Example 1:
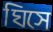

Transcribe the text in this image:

ঘিসে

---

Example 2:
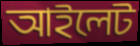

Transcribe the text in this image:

আইলেট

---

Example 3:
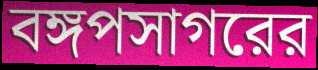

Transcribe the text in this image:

বঙ্গপসাগরের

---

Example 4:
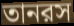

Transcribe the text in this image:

তানরস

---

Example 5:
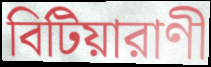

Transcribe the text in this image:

বিটিয়ারাণী